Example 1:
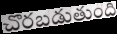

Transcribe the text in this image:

చొరబడుతుంది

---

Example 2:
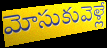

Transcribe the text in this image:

మోసుకువెళ్లే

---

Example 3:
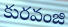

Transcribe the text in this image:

కురవంజి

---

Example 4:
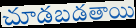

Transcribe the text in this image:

చూడబడతాయి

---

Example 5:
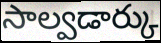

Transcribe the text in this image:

సాల్వడార్కు